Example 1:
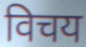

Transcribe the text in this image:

विचय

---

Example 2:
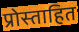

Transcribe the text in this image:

प्रोस्ताहित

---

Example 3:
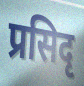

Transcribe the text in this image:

प्रसिदृ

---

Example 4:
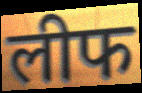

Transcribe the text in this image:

लीफ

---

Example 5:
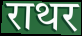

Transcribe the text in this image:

राथर